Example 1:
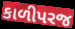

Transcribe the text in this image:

કાળીપરજ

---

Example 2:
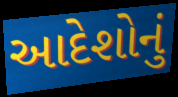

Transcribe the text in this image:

આદેશોનું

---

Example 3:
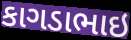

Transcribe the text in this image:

કાગડાભાઇ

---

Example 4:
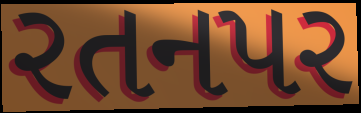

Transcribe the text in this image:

રતનપર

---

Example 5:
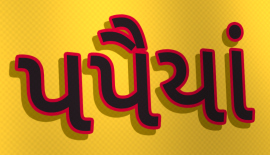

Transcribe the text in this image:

પપૈયાં